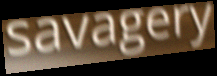
savagery